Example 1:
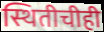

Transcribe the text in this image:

स्थितीचीही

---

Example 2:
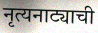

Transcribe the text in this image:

नृत्यनाट्याची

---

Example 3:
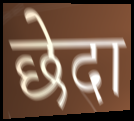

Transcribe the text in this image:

छेदा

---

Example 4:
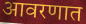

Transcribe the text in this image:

आवरणात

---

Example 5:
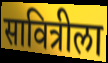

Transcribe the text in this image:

सावित्रीला